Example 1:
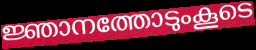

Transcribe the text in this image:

ജ്ഞാനത്തോടുംകൂടെ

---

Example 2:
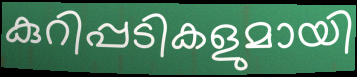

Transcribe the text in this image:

കുറിപ്പടികളുമായി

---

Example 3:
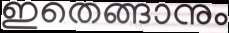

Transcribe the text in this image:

ഇതെങ്ങാനും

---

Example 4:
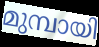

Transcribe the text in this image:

മുമ്പായി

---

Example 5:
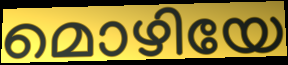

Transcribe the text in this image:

മൊഴിയേ